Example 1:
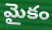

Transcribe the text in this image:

మైకం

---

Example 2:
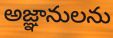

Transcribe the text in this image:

అజ్ఞానులను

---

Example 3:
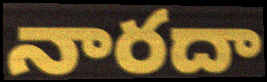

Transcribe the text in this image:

నారదా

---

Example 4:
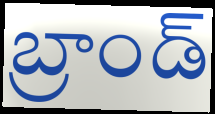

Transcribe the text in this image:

బ్రాండ్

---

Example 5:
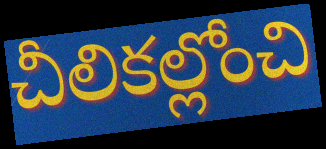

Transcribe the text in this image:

చీలికల్లోంచి